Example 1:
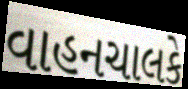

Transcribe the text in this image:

વાહનચાલકે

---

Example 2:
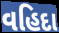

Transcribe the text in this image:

વહિદા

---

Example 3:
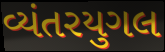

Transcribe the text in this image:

વ્યંતરયુગલ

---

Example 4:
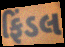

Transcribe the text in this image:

ફિંડલ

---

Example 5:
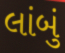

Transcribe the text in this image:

લાંબું